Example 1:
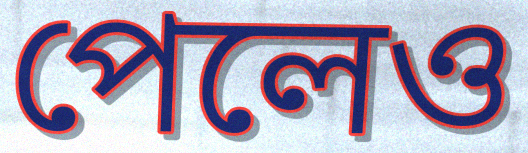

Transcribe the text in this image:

পেলেও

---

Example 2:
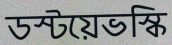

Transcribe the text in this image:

ডস্টয়েভস্কি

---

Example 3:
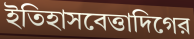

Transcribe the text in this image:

ইতিহাসবেত্তাদিগের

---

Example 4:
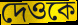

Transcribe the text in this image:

দেওকে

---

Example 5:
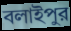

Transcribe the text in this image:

বলাইপুর